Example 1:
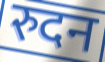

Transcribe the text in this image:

रुदन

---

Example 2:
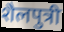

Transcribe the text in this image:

शैलपुत्री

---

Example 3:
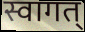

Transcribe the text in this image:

स्वागत्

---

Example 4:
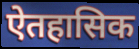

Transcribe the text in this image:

ऐतहासिक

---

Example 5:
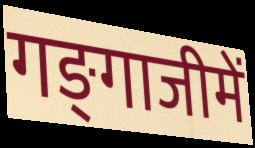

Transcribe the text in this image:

गङ्गाजीमें